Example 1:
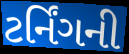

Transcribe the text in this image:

ટર્નિંગની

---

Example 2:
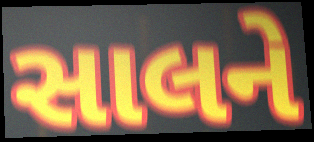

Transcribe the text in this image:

સાલને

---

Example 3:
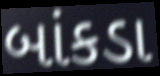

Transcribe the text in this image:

બાંકડા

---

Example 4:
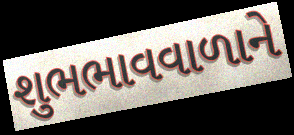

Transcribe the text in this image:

શુભભાવવાળાને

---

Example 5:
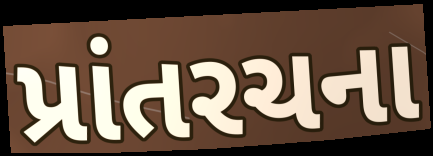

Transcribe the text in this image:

પ્રાંતરચના